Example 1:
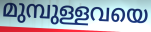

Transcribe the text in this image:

മുമ്പുള്ളവയെ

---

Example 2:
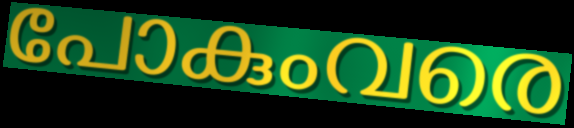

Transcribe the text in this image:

പോകുംവരെ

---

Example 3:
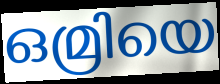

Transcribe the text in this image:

ഒമ്രിയെ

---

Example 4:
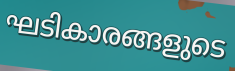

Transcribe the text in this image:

ഘടികാരങ്ങളുടെ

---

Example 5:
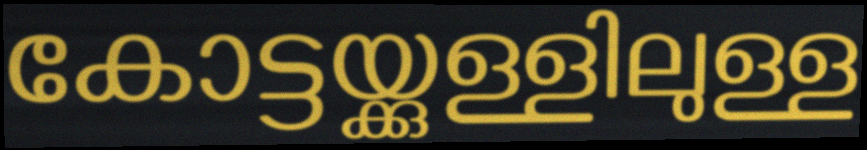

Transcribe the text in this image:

കോട്ടയ്ക്കുള്ളിലുള്ള